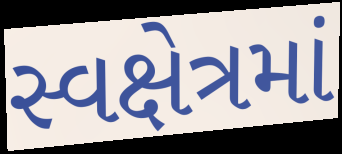
સ્વક્ષેત્રમાં